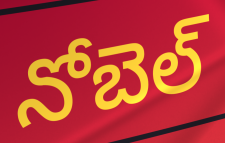
నోబెల్